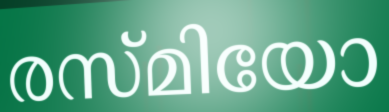
രസ്മിയോ